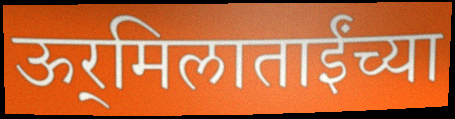
ऊर्मिलाताईंच्या